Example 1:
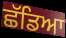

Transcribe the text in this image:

ਛੱਡਿਆ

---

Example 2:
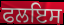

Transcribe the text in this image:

ਫਲਇਸ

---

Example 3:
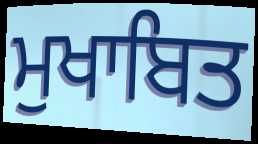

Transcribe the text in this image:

ਮੁਖਾਬਿਤ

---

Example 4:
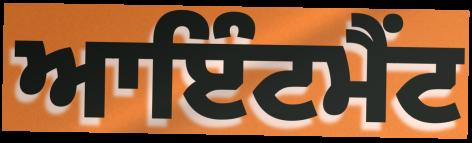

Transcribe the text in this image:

ਆਇੰਟਮੈਂਟ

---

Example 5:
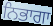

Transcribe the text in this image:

ਨਿਭਾਗਾ